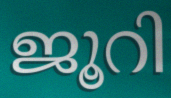
ജൂറി